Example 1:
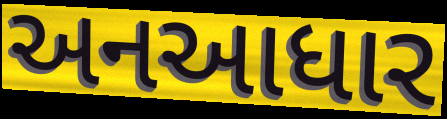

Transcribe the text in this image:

અનઆધાર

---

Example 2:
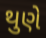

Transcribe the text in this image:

થુણે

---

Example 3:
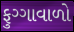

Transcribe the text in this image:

ફુગ્ગાવાળો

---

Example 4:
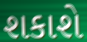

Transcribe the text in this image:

શકાશે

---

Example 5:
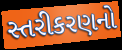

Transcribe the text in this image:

સ્તરીકરણનો